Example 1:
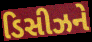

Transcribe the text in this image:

ડિસીઝને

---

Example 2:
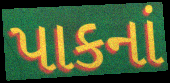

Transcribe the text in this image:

પાકનાં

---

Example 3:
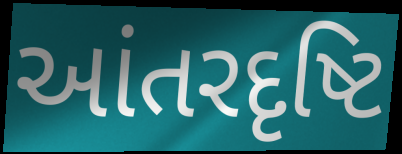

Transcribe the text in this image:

આંતરદૃષ્ટિ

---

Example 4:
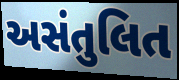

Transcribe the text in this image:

અસંતુલિત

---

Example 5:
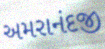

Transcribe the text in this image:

અમરાનંદજી